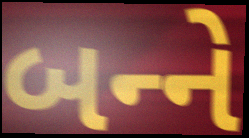
બન્‍ને